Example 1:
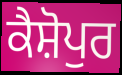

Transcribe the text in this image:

ਕੈਸ਼ੋਪੁਰ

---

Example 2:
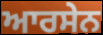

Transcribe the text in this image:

ਆਰਸੇਨ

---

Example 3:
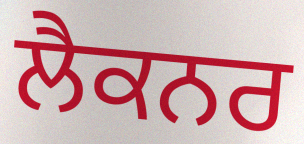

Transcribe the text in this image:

ਲੈਕਨਰ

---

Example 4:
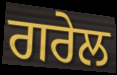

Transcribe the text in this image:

ਗਰੇਲ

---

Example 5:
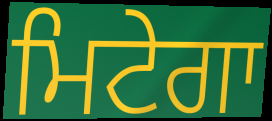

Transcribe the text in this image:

ਮਿਟੇਗਾ